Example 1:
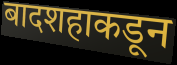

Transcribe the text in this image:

बादशहाकडून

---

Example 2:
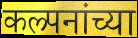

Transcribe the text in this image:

कल्पनांच्या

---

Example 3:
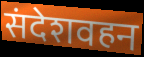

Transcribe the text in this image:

संदेशवहन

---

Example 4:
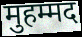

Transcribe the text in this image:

मुहम्मद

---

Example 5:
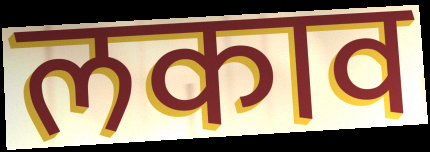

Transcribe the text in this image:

लकाव